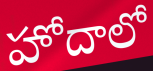
హోదాలో